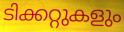
ടിക്കറ്റുകളും